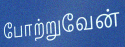
போற்றுவேன்